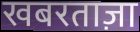
खबरताज़ा